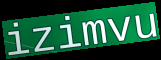
izimvu